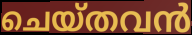
ചെയ്തവൻ